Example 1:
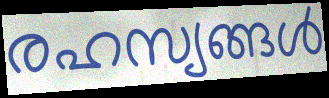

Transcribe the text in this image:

രഹസ്യങ്ങൾ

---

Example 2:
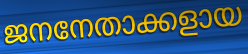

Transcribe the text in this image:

ജനനേതാക്കളായ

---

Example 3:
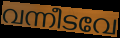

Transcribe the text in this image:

വന്നീടവേ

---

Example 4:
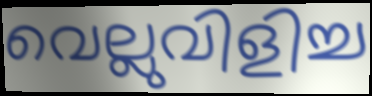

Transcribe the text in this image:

വെല്ലുവിളിച്ച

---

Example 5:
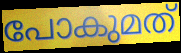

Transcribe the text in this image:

പോകുമത്